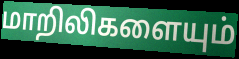
மாறிலிகளையும்